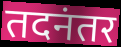
तदनंतर